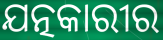
ଯତ୍ନକାରୀର